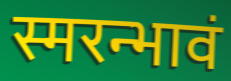
स्मरन्भावं